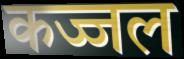
कज्जल